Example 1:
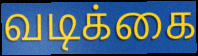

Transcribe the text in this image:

வடிக்கை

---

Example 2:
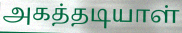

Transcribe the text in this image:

அகத்தடியாள்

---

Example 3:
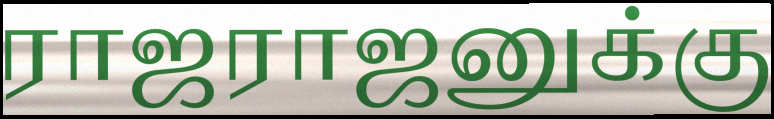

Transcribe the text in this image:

ராஜராஜனுக்கு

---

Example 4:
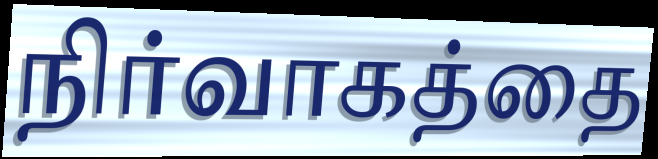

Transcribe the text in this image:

நிர்வாகத்தை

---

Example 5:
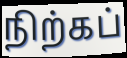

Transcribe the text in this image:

நிற்கப்